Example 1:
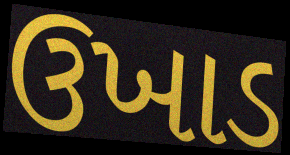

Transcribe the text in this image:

ઉખાડ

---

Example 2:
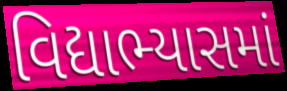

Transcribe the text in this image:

વિદ્યાભ્યાસમાં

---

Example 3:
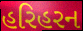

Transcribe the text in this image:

હરિહરન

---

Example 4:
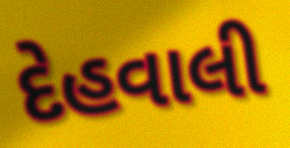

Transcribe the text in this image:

દેહવાલી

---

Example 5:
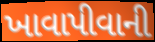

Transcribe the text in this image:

ખાવાપીવાની